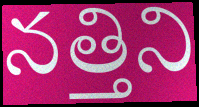
నత్తిని